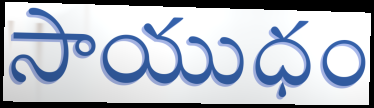
సాయుధం